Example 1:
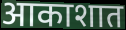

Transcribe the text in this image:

आकाशात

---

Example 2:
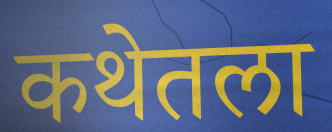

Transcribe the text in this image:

कथेतला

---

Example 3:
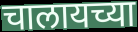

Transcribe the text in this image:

चालायच्या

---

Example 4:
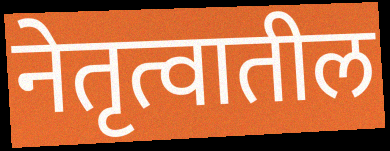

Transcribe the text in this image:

नेतृत्वातील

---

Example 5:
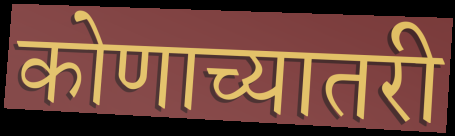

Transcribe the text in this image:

कोणाच्यातरी